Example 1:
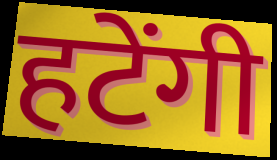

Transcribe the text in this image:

हटेंगी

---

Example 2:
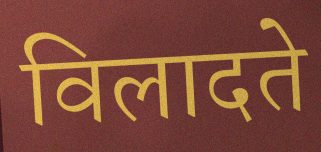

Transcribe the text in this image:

विलादते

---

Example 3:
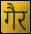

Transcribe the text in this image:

गैर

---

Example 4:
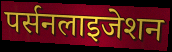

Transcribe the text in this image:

पर्सनलाइजेशन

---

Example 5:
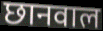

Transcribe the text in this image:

छानवाल